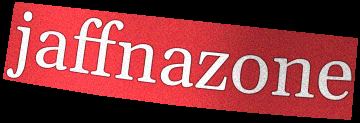
jaffnazone